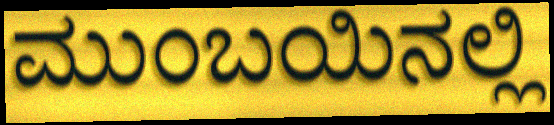
ಮುಂಬಯಿನಲ್ಲಿ